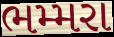
ભમ્મરા